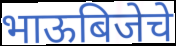
भाऊबिजेचे